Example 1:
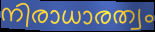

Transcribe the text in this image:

നിരാധാരത്വം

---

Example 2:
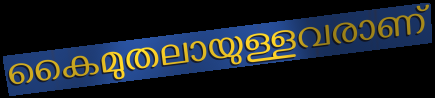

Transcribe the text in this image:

കൈമുതലായുള്ളവരാണ്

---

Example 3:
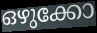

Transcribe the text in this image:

ഒഴുക്കോ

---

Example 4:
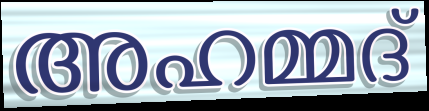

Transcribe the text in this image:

അഹമ്മദ്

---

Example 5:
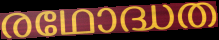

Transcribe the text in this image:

രഥോദ്ധത